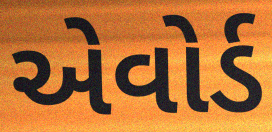
એવોર્ડ